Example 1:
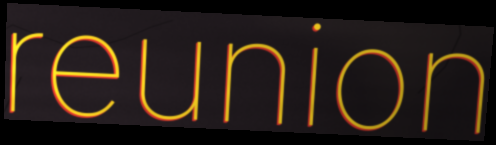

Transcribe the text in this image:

reunion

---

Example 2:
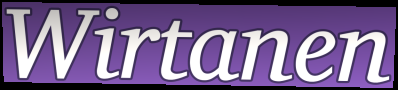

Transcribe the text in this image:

Wirtanen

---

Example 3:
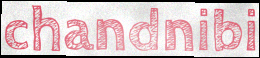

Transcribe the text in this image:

chandnibi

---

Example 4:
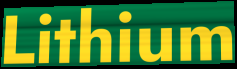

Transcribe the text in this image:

Lithium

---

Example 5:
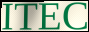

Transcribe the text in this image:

ITEC